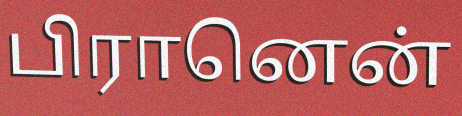
பிரானென்